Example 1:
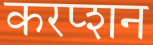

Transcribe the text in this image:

करप्शन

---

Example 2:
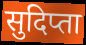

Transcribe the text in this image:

सुदिप्ता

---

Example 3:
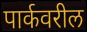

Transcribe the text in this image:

पार्कवरील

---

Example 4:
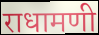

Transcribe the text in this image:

राधामणी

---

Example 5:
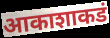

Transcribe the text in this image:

आकाशाकडं